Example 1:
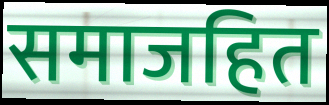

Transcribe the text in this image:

समाजहित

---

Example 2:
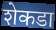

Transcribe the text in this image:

शेकडा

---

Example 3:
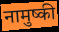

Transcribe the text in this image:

नामुष्की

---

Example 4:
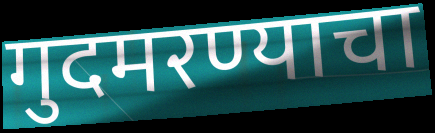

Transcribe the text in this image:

गुदमरण्याचा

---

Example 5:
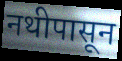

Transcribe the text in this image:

नथीपासून